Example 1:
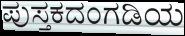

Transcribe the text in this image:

ಪುಸ್ತಕದಂಗಡಿಯ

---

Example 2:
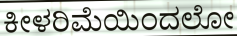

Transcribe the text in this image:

ಕೀಳರಿಮೆಯಿಂದಲೋ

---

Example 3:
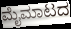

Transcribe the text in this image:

ಮೈಮಾಟದ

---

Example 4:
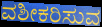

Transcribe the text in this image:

ವಶೀಕರಿಸುವ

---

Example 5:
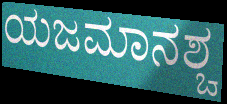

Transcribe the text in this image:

ಯಜಮಾನಶ್ಚ